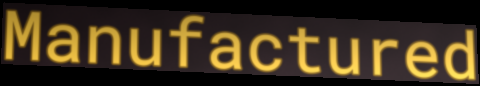
Manufactured